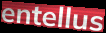
entellus